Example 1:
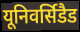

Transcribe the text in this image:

यूनिवर्सिडैड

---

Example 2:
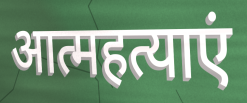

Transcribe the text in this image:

आत्महत्याएं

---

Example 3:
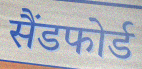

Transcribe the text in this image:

सैंडफोर्ड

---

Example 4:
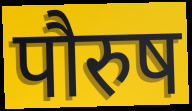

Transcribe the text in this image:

पौरुष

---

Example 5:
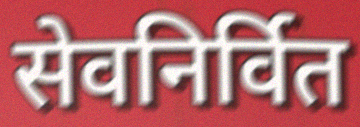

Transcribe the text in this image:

सेवनिर्वित